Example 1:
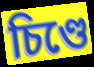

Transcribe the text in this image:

চিণ্ডে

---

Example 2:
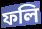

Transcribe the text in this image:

ফলি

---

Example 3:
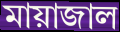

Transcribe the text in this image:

মায়াজাল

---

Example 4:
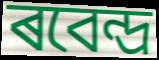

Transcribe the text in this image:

ৰবেন্দ্ৰ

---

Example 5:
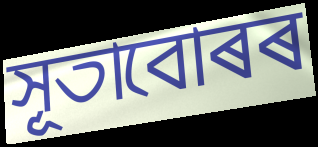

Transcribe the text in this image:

সূতাবোৰৰ